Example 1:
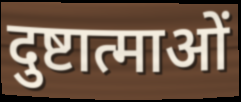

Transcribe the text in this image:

दुष्टात्माओं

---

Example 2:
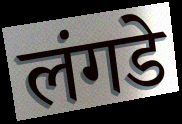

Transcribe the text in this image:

लंगडे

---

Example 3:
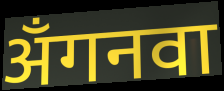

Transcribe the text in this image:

अँगनवा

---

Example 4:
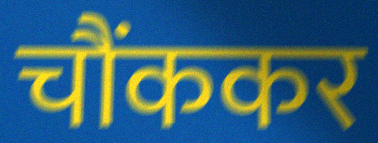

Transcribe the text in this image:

चौंककर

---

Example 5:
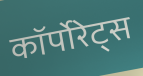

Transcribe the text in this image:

कॉर्पोरेट्स